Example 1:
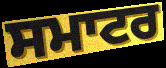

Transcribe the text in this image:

ਸਮਾਟਰ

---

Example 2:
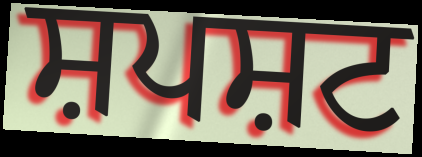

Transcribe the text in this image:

ਸ਼ਪਸ਼ਟ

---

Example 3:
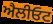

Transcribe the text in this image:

ਐਲੀਓਟ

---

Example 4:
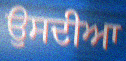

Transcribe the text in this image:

ਉਸਦੀਆ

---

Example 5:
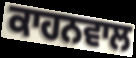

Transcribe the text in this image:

ਕਾਹਨਵਾਲ